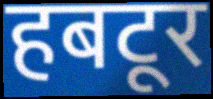
हबटूर